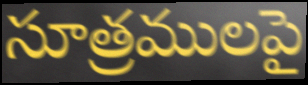
సూత్రములపై